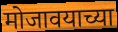
मोजावयाच्या